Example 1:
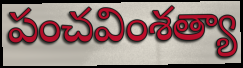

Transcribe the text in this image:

పంచవింశత్యా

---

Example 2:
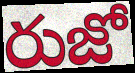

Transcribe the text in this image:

రుజో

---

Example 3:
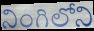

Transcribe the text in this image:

నింగిలోని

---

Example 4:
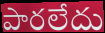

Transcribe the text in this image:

పారలేదు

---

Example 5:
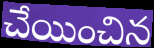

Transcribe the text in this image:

చేయించిన